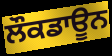
ਲੌਕਡਾਊਨ